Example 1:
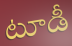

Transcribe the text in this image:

టూడీ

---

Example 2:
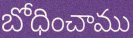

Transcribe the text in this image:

బోధించాము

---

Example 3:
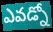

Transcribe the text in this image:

ఎవడ్నో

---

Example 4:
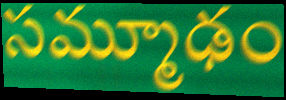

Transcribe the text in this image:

సమ్మూఢం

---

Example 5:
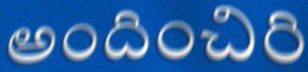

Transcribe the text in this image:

అందించిరి